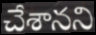
చేశానని